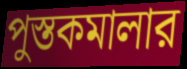
পুস্তকমালার